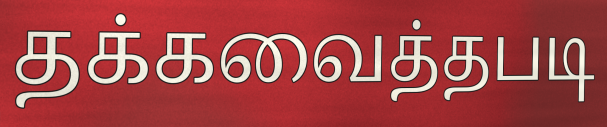
தக்கவைத்தபடி